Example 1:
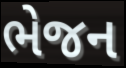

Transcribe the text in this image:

ભેજન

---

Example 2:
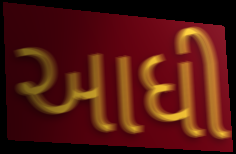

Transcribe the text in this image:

આધી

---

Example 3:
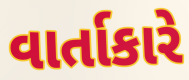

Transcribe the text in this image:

વાર્તાકારે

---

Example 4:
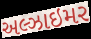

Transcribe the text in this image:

અલ્ઝાઇમર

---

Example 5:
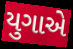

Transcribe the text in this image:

યુગાએ